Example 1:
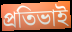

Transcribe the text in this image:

প্রতিভাই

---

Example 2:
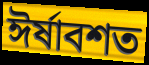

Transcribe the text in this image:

ঈর্ষাবশত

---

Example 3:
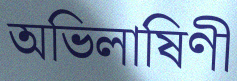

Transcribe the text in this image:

অভিলাষিণী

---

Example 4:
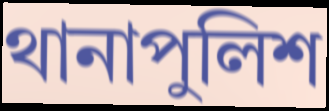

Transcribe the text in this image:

থানাপুলিশ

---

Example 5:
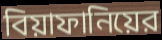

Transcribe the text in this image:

বিয়াফানিয়ের